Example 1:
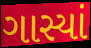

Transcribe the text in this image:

ગાસ્યાં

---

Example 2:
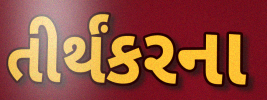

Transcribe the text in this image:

તીર્થંકરના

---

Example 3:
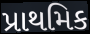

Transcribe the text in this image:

પ્રાથમિક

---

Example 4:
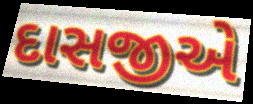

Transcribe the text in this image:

દાસજીએ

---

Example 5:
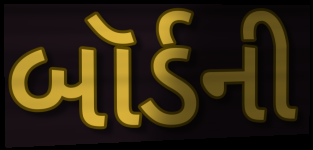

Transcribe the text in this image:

બૉર્ડની